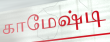
காமேஷ்டி